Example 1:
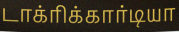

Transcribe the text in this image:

டாக்ரிக்கார்டியா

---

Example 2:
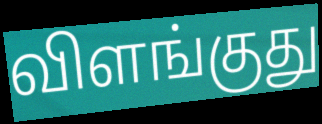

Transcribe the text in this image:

விளங்குது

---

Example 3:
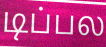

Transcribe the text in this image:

டிப்பல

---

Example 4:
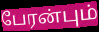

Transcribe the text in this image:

பேரன்பும்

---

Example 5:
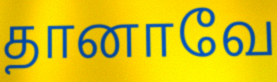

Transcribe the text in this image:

தானாவே